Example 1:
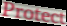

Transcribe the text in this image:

Protect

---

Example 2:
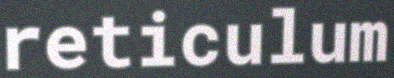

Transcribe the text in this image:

reticulum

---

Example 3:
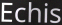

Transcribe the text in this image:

Echis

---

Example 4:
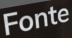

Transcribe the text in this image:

Fonte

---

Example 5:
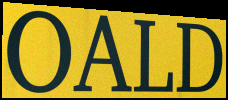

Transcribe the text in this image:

OALD